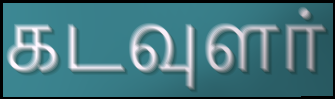
கடவுளர்